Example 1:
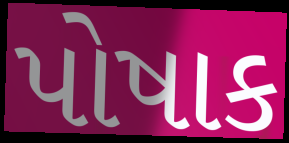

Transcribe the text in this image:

પોષાક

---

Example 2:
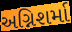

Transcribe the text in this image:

અગ્નિશર્મા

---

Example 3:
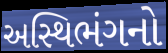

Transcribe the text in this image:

અસ્થિભંગનો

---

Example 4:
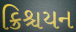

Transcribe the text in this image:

ક્રિશ્ચયન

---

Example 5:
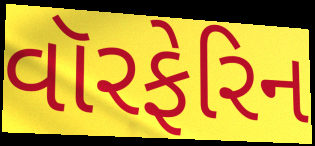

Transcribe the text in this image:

વૉરફેરિન